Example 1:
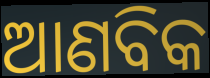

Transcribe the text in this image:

ଆଣବିକ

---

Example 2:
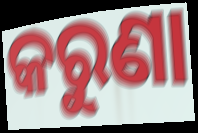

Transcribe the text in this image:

କରୁଣା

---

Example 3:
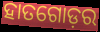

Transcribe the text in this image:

ହାତଗୋଡ଼ର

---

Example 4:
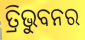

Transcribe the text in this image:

ତ୍ରିଭୁବନର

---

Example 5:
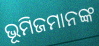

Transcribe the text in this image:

ଭୂମିଜମାନଙ୍କ